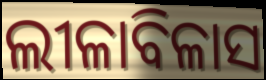
ଲୀଳାବିଳାସ